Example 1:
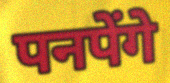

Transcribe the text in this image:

पनपेंगे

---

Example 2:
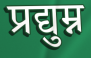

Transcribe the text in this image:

प्रद्युम्न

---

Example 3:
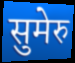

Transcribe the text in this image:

सुमेरु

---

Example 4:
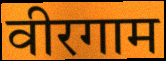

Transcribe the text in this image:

वीरगाम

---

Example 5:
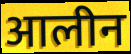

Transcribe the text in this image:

आलीन